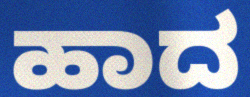
ಹಾದ